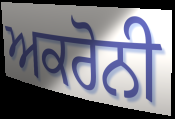
ਅਕਰੋਨੀ